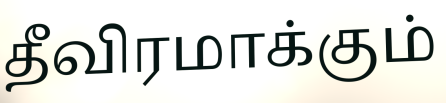
தீவிரமாக்கும்